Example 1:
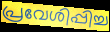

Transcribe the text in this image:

പ്രവേശിപ്പിച്ച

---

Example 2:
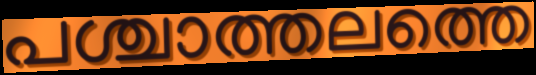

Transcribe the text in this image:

പശ്ചാത്തലത്തെ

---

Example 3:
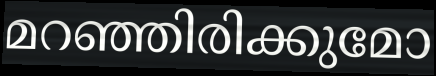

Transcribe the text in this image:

മറഞ്ഞിരിക്കുമോ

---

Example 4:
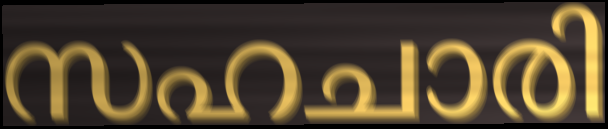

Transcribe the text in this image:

സഹചാരി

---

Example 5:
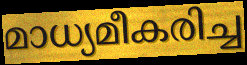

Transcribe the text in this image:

മാധ്യമീകരിച്ച